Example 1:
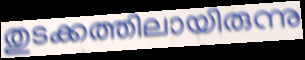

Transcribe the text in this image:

തുടക്കത്തിലായിരുന്നു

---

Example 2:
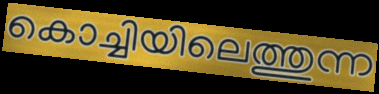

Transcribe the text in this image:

കൊച്ചിയിലെത്തുന്ന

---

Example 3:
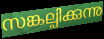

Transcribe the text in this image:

സങ്കല്പിക്കുന്നു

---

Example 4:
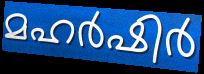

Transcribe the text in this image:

മഹർഷിർ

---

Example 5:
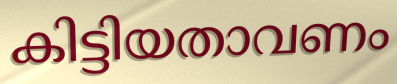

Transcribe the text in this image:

കിട്ടിയതാവണം